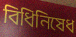
বিধিনিষেধ